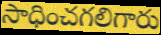
సాధించగలిగారు